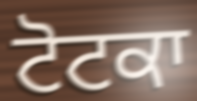
ਟੋਟਕਾ